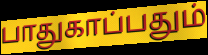
பாதுகாப்பதும்